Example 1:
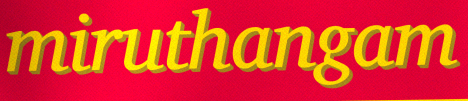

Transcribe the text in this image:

miruthangam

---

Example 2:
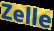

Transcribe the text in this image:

Zelle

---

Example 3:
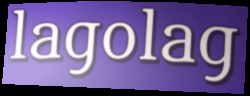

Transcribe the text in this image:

lagolag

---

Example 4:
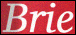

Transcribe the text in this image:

Brie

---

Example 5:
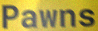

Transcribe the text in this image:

Pawns